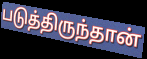
படுத்திருந்தான்